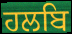
ਹਲਬਿ